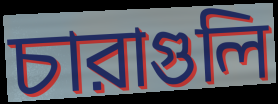
চারাগুলি